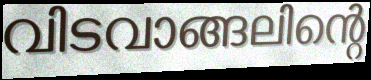
വിടവാങ്ങലിന്റെ